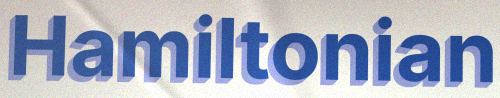
Hamiltonian